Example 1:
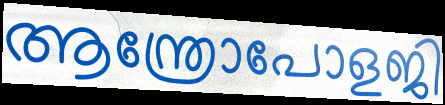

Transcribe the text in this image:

ആന്ത്രോപോളജി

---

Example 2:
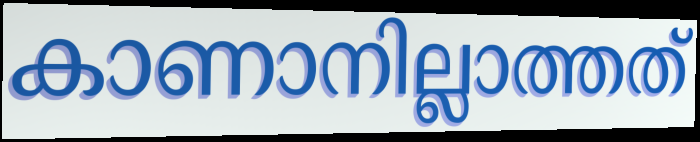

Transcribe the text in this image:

കാണാനില്ലാത്തത്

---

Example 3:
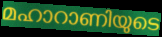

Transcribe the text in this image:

മഹാറാണിയുടെ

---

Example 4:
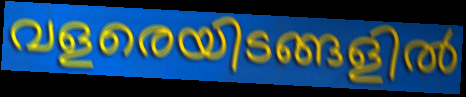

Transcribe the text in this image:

വളരെയിടങ്ങളിൽ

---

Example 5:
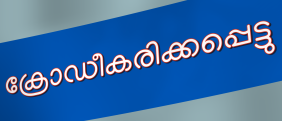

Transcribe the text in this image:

ക്രോഡീകരിക്കപ്പെട്ടു